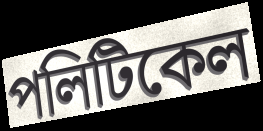
পলিটিকেল